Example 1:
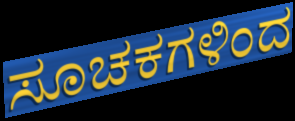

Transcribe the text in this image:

ಸೂಚಕಗಳಿಂದ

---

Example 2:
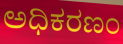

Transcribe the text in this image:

ಅಧಿಕರಣಂ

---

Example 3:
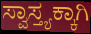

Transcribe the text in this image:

ಸ್ವಾಸ್ತ್ಯಕ್ಕಾಗಿ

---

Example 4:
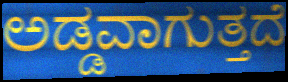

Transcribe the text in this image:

ಅಡ್ಡವಾಗುತ್ತದೆ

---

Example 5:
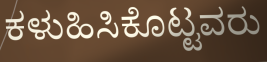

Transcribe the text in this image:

ಕಳುಹಿಸಿಕೊಟ್ಟವರು